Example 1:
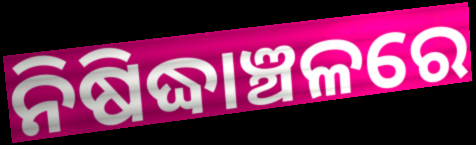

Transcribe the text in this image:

ନିଷିଦ୍ଧାଞ୍ଚଳରେ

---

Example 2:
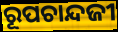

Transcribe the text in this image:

ରୂପଚାନ୍ଦଜୀ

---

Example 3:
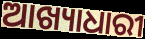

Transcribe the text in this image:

ଆଖ୍ୟାଧାରୀ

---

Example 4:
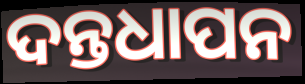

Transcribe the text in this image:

ଦନ୍ତଧାପନ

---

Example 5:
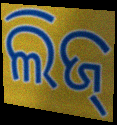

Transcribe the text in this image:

ଲିଜ୍